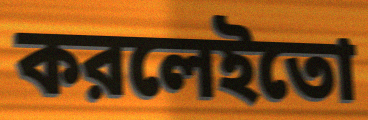
করলেইতো